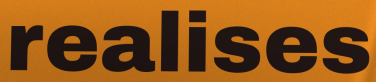
realises